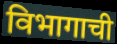
विभागाची